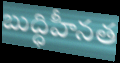
బుద్ధిహీనత